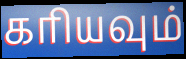
கரியவும்